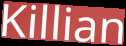
Killian